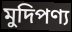
মুদিপণ্য